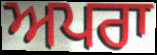
ਅਪਰਾ